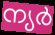
ന്യർ